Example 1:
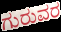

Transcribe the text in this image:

ಗುರುವರ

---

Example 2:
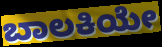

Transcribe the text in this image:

ಬಾಲಕಿಯೇ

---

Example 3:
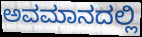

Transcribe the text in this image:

ಅವಮಾನದಲ್ಲಿ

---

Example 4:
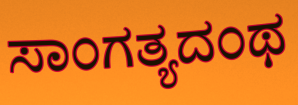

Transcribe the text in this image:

ಸಾಂಗತ್ಯದಂಥ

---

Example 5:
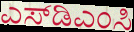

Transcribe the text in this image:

ಎಸ್‌ಡಿಎಂಸಿ